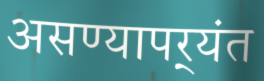
असण्यापर्यंत